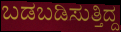
ಬಡಬಡಿಸುತ್ತಿದ್ದ